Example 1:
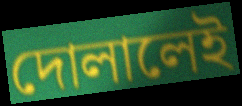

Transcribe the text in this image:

দোলালেই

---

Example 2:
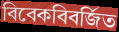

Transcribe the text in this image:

বিবেকবিবর্জিত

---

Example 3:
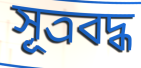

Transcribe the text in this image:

সূত্রবদ্ধ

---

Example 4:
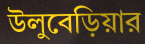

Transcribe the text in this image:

উলুবেড়িয়ার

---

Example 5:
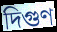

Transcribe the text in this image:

দিগুণ